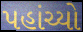
પહાંચ્યો